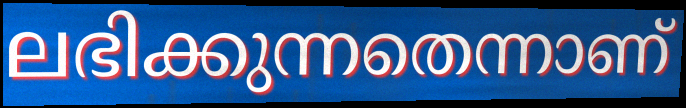
ലഭിക്കുന്നതെന്നാണ്